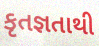
કૃતજ્ઞતાથી